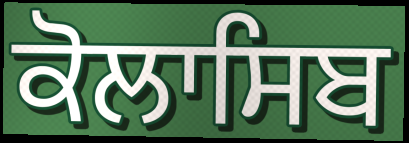
ਕੋਲਾਸਿਬ